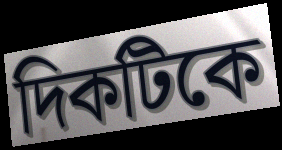
দিকটিকে